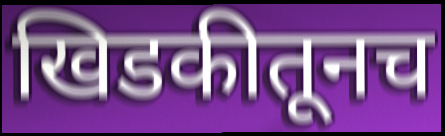
खिडकीतूनच